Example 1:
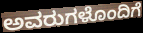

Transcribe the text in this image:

ಅವರುಗಳೊಂದಿಗೆ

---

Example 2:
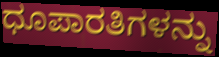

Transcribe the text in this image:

ಧೂಪಾರತಿಗಳನ್ನು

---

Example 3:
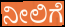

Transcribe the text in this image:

ನೀಲಿಗೆ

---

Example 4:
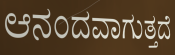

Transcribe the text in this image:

ಆನಂದವಾಗುತ್ತದೆ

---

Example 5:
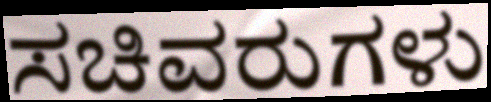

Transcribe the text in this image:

ಸಚಿವರುಗಳು